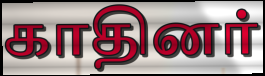
காதினர்